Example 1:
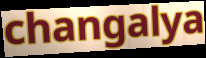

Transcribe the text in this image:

changalya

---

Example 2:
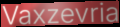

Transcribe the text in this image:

Vaxzevria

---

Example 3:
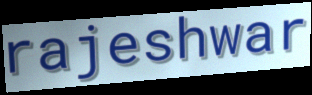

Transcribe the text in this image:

rajeshwar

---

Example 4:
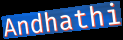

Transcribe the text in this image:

Andhathi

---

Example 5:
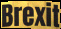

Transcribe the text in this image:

Brexit